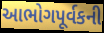
આભોગપૂર્વકની